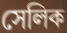
সেলিক